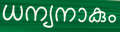
ധന്യനാകും